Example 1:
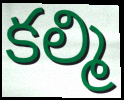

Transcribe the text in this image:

కల్మి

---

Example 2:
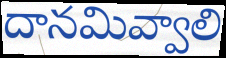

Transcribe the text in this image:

దానమివ్వాలి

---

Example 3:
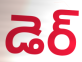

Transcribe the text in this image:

డెర్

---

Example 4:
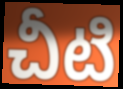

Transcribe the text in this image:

చీటి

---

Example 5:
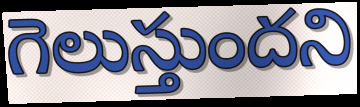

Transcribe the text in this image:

గెలుస్తుందని